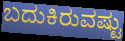
ಬದುಕಿರುವಷ್ಟು